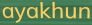
ayakhun